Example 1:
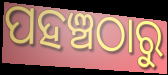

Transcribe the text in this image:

ପହଞ୍ଚଠାରୁ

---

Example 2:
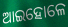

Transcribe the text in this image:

ଆଇହୋଳେ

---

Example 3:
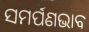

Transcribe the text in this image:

ସମର୍ପଣଭାବ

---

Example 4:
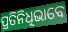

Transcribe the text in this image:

ପ୍ରତିନିଧିଭାବେ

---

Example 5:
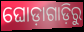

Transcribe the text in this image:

ଘୋଡ଼ାଗାଡ଼ିରୁ